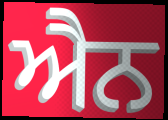
ਐਨ